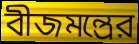
বীজমন্ত্রের